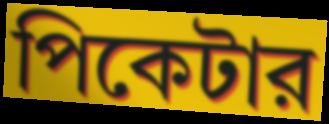
পিকেটার